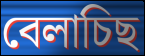
বেলাচিছ